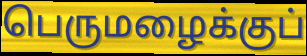
பெருமழைக்குப்